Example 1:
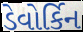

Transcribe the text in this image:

ડેવોર્કિન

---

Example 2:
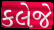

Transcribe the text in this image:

કલેજે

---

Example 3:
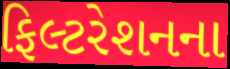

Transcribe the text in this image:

ફિલ્ટરેશનના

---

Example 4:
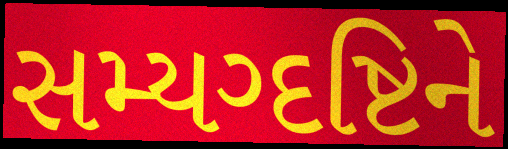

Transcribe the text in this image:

સમ્યગ્દષ્ટિને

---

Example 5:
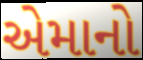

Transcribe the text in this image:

એમાનો